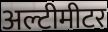
अल्टीमीटर